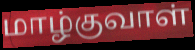
மாழ்குவாள்